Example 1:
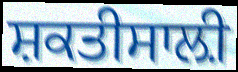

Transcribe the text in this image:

ਸ਼ਕਤੀਸਾਲ਼ੀ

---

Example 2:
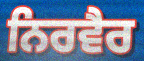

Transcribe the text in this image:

ਨਿਰਵੈਰ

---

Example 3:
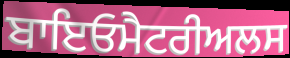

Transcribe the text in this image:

ਬਾਇਓਮੈਟਰੀਅਲਸ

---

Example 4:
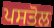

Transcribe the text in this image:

ਪਸਤੋਲ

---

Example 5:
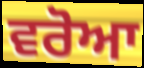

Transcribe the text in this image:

ਵਰੋਆ